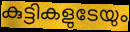
കുട്ടികളുടേയും